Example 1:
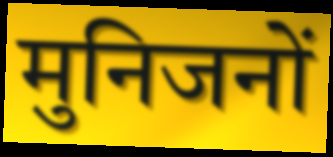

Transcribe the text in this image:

मुनिजनों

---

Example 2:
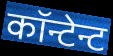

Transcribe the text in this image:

कॉन्टेन्ट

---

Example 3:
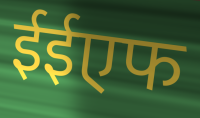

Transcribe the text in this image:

ईईएफ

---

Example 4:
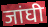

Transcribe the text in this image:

जांघी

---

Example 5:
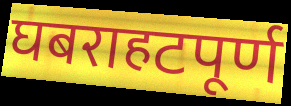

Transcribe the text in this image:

घबराहटपूर्ण